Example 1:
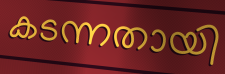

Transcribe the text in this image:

കടന്നതായി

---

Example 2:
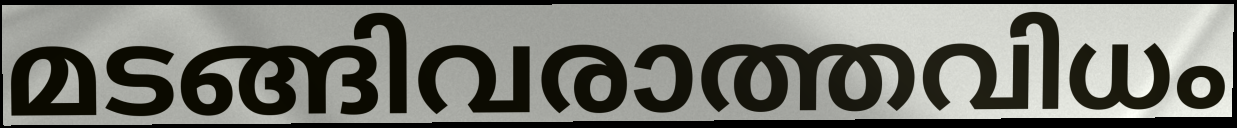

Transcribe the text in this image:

മടങ്ങിവരാത്തവിധം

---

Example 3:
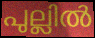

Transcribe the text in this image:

പുല്ലിൽ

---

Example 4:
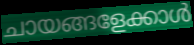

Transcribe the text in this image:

ചായങ്ങളേക്കാൾ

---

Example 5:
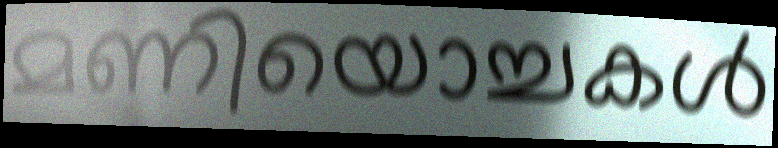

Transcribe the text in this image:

മണിയൊച്ചകൾ